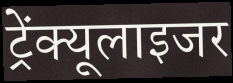
ट्रेंक्यूलाइजर